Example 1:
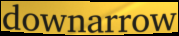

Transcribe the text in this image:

downarrow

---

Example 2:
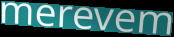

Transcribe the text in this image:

merevem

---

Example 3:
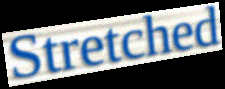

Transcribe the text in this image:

Stretched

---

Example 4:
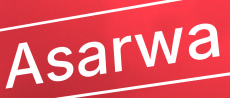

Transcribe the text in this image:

Asarwa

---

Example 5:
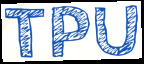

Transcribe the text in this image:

TPU